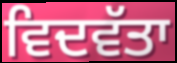
ਵਿਦਵੱਤਾ